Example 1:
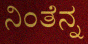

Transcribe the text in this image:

ನಿಂತೆನ್ನ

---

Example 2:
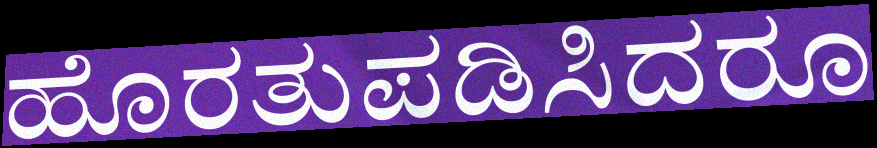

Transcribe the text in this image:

ಹೊರತುಪಡಿಸಿದರೂ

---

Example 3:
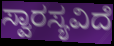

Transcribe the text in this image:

ಸ್ವಾರಸ್ಯವಿದೆ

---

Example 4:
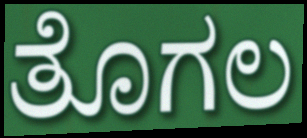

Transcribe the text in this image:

ತೊಗಲ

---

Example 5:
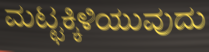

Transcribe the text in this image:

ಮಟ್ಟಕ್ಕಿಳಿಯುವುದು